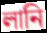
লানি